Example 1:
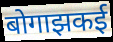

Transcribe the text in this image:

बोगाझकई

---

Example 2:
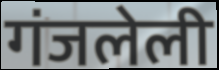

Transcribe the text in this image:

गंजलेली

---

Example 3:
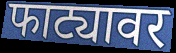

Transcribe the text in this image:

फाट्यावर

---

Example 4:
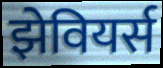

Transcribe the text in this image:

झेवियर्स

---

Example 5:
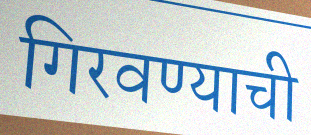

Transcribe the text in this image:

गिरवण्याची